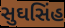
સુઘસિંહ